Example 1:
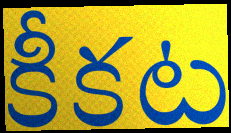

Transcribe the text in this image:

కీకట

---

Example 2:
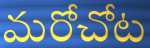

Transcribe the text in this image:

మరోచోట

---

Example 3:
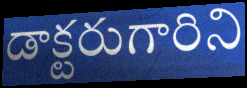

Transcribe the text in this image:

డాక్టరుగారిని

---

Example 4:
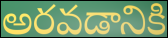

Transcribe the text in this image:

అరవడానికి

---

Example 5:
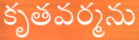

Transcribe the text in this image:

కృతవర్మను